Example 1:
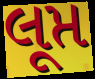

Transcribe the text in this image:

લૂપ્ત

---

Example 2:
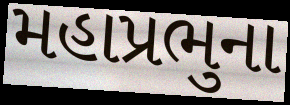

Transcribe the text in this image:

મહાપ્રભુના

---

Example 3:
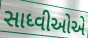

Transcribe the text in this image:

સાધ્વીઓએ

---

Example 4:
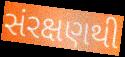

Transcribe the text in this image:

સંરક્ષણથી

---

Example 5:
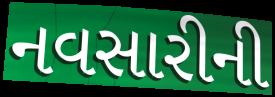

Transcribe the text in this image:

નવસારીની